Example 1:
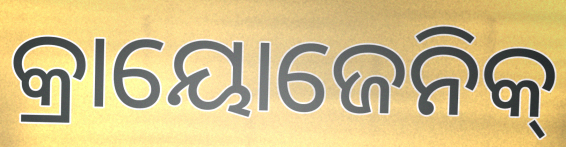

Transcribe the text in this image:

କ୍ରାୟୋଜେନିକ୍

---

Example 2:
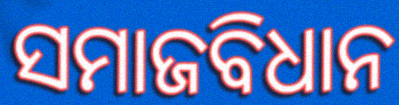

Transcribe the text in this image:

ସମାଜବିଧାନ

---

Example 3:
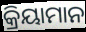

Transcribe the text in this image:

କ୍ରିୟାମାନ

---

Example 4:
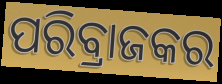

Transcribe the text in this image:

ପରିବ୍ରାଜକର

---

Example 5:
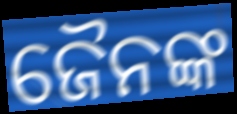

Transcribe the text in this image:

ଜୈନଙ୍କ